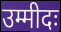
उम्मीदः